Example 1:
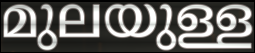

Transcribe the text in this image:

മുലയുള്ള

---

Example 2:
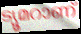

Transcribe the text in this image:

ട്യൂമറാണ്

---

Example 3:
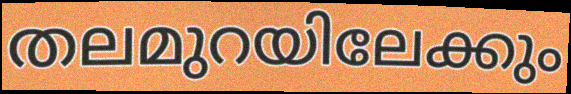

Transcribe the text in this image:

തലമുറയിലേക്കും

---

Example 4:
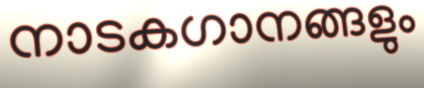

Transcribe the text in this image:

നാടകഗാനങ്ങളും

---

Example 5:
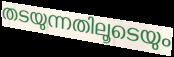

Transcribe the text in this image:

തടയുന്നതിലൂടെയും